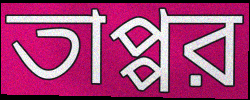
তাপ্পর